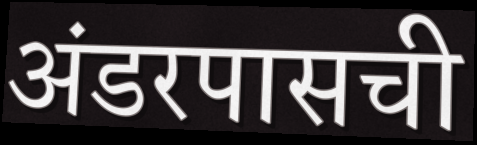
अंडरपासची